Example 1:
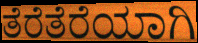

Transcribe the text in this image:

ತೆರೆತೆರೆಯಾಗಿ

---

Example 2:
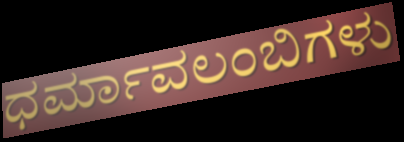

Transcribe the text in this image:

ಧರ್ಮಾವಲಂಬಿಗಳು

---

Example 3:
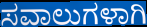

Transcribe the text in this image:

ಸವಾಲುಗಳಾಗಿ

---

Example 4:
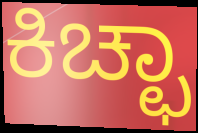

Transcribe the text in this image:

ಕಿಚ್ಛಾ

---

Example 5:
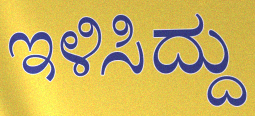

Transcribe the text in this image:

ಇಳಿಸಿದ್ದು